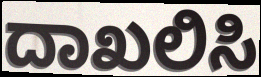
ದಾಖಲಿಸಿ